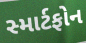
સ્માર્ટફોન